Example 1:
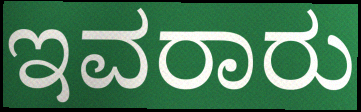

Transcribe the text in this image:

ಇವರಾರು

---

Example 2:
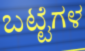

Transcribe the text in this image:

ಬಟ್ಟೆಗಳ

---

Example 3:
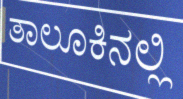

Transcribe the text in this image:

ತಾಲೂಕಿನಲ್ಲಿ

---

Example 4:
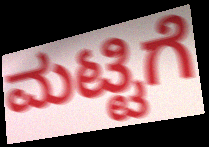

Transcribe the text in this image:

ಮಟ್ಟಿಗೆ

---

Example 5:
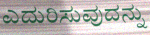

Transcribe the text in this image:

ಎದುರಿಸುವುದನ್ನು